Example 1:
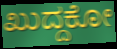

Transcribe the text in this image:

ಖುದ್ದಕೋ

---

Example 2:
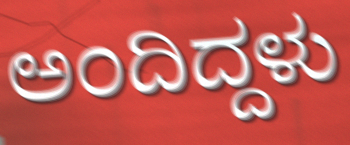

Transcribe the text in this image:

ಅಂದಿದ್ದಳು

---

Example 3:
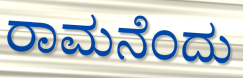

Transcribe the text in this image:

ರಾಮನೆಂದು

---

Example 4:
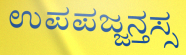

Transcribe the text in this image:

ಉಪಪಜ್ಜನ್ತಸ್ಸ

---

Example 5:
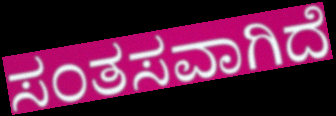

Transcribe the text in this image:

ಸಂತಸವಾಗಿದೆ